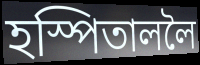
হস্পিতাললৈ